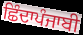
ਛਿੰਦਾਪੰਜਾਬੀ